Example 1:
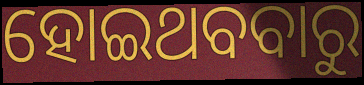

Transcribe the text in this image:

ହୋଇଥବବାରୁ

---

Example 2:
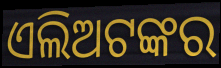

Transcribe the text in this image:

ଏଲିଅଟଙ୍କର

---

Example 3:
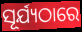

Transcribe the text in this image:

ସୂର୍ଯ୍ୟଠାରେ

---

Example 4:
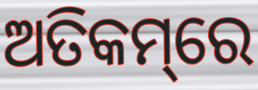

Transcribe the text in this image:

ଅତିକମ୍‌ରେ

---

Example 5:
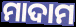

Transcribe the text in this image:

ମାଦାମ